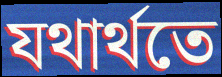
যথাৰ্থতে